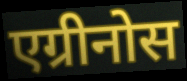
एग्रीनोस